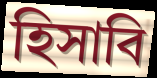
হিসাবি